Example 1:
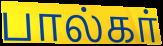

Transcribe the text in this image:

பால்கர்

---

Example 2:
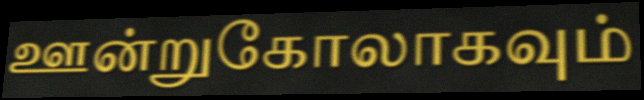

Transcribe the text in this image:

ஊன்றுகோலாகவும்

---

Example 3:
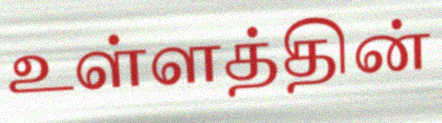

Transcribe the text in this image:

உள்ளத்தின்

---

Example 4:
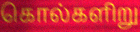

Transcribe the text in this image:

கொல்களிறு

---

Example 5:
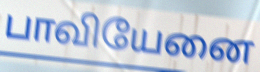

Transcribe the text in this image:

பாவியேனை